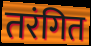
तरंगित